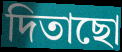
দিতাছো